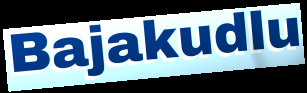
Bajakudlu